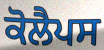
ਕੋਲੈਪਸ